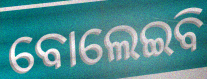
ବୋଲେଇବି